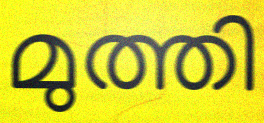
മുത്തി